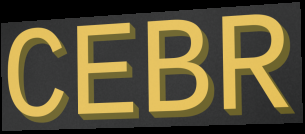
CEBR